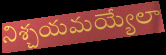
నిశ్చయమయ్యేలా